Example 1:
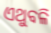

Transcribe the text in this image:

ଏଥୁବଳି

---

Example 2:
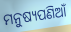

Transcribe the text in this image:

ମନୁଷ୍ୟପଣିଆଁ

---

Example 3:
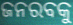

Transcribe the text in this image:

ଜନରବକୁ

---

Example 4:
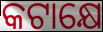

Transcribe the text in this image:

କଟାକ୍ଷେ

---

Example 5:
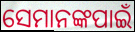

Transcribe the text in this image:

ସେମାନଙ୍କପାଇଁ